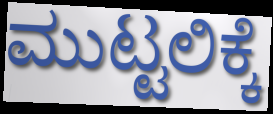
ಮುಟ್ಟಲಿಕ್ಕೆ